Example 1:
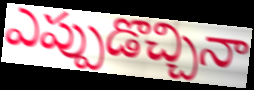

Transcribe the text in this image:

ఎప్పుడొచ్చినా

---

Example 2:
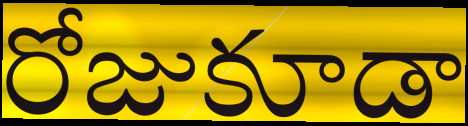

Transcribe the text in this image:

రోజుకూడా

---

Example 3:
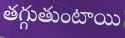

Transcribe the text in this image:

తగ్గుతుంటాయి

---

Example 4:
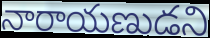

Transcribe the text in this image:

నారాయణుడని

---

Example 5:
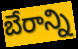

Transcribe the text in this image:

బేరాన్ని